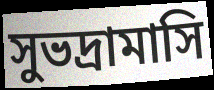
সুভদ্রামাসি